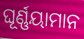
ଘୂର୍ଣ୍ଣୟାମାନ